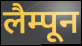
लैम्पून